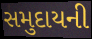
સમુદાયની